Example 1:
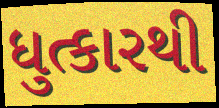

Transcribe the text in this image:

ધુત્કારથી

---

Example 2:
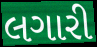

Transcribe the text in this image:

લગારી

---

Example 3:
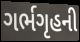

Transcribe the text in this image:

ગર્ભગૃહની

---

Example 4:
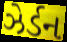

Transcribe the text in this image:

ઝેર્ડન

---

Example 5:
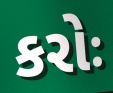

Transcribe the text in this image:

કરોઃ